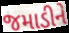
જમાડીને